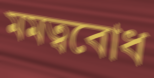
মমত্ববোধ